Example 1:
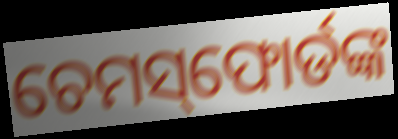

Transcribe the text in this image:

ଚେମସ୍‌ଫୋର୍ଡଙ୍କ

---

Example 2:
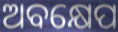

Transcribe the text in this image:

ଅବକ୍ଷେପ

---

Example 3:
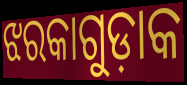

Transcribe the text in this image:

ଝରକାଗୁଡ଼ାକ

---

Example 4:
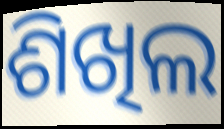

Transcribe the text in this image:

ଶିଖିଲ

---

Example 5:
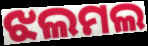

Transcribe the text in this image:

ଝଲମଲ